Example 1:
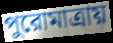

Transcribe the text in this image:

পুরোমাত্রায়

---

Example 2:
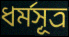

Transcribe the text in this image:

ধর্মসূত্র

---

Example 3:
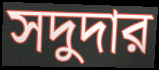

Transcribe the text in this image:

সদুদার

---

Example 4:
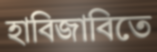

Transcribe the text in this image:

হাবিজাবিতে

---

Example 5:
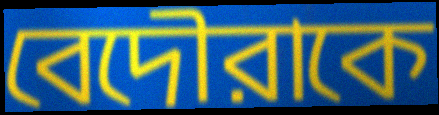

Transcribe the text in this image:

বেদৌরাকে